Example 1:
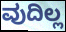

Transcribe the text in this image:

ವುದಿಲ್ಲ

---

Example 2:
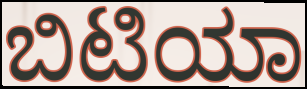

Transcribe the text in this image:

ಬಿಟಿಯಾ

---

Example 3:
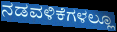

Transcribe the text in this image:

ನಡವಳಿಕೆಗಳಲ್ಲೂ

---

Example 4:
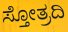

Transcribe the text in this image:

ಸ್ತೋತ್ರದಿ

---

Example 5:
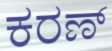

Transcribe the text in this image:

ಕರಣ್